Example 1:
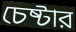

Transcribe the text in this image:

চেষ্টার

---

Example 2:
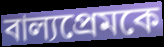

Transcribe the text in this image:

বাল্যপ্রেমকে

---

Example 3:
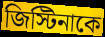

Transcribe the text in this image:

জিস্টিনাকে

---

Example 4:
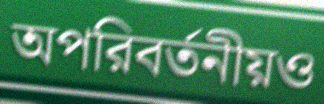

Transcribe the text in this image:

অপরিবর্তনীয়ও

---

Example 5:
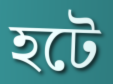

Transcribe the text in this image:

হটে